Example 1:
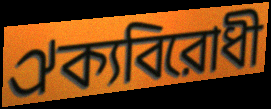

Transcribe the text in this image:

ঐক্যবিরোধী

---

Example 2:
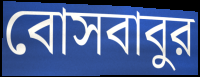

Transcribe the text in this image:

বোসবাবুর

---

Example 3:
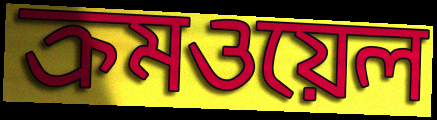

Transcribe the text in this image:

ক্রমওয়েল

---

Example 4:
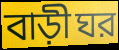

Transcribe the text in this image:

বাড়ীঘর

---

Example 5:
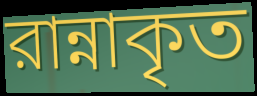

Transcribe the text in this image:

রান্নাকৃত